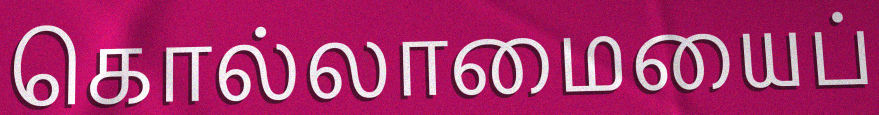
கொல்லாமையைப்